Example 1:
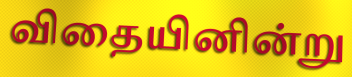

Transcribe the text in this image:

விதையினின்று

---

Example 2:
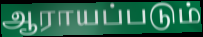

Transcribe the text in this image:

ஆராயப்படும்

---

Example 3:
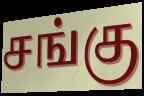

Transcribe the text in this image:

சங்கு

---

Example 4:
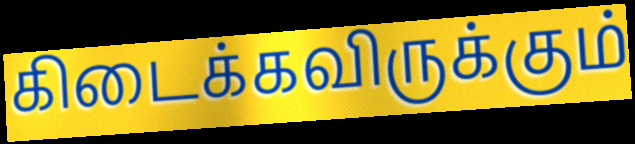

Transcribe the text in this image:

கிடைக்கவிருக்கும்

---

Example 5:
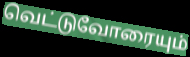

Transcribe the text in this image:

வெட்டுவோரையும்